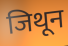
जिथून